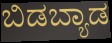
ಬಿಡಬ್ಯಾಡ